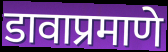
डावाप्रमाणे